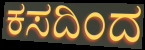
ಕಸದಿಂದ